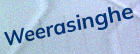
Weerasinghe